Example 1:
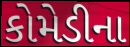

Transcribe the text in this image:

કોમેડીના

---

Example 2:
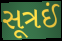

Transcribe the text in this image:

સૂત્રઈં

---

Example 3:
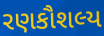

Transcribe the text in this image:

રણકૌશલ્ય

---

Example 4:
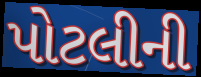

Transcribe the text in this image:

પોટલીની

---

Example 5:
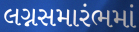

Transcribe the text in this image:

લગ્નસમારંભમાં